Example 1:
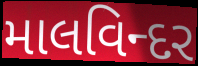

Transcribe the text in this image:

માલવિન્દર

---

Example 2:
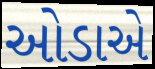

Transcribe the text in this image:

ઓડાએ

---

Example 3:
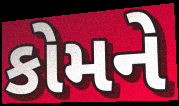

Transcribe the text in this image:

કોમને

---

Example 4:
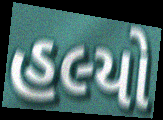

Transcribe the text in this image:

હલ્યો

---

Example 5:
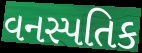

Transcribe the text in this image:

વનસ્પતિક